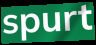
spurt